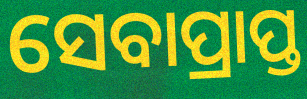
ସେବାପ୍ରାପ୍ତ